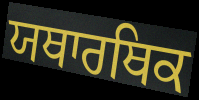
ਯਥਾਰਥਿਕ